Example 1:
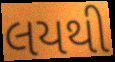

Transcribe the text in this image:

લયથી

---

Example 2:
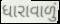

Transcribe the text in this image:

ધારાવાળું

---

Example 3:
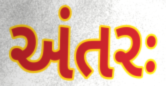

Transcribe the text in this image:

અંતરઃ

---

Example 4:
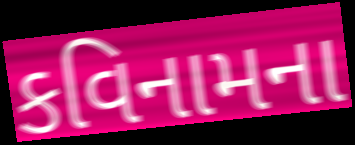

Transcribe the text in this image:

કવિનામના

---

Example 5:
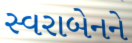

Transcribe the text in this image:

સ્વરાબેનને